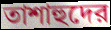
তাশাহুদের